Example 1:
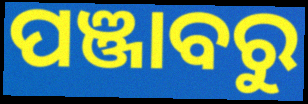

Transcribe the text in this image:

ପଞ୍ଜାବରୁ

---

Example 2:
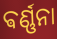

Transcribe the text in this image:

ଵର୍ଣ୍ଣନା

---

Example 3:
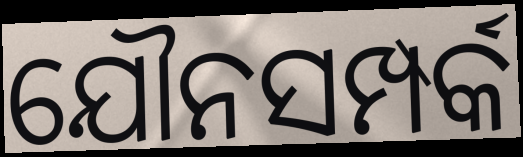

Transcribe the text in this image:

ଯୌନସମ୍ପର୍କ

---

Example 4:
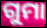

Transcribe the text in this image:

ଗୁମା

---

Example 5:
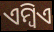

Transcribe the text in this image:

ଏମ୍ବିଏ